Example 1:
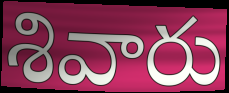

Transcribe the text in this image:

శివారు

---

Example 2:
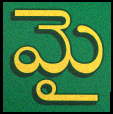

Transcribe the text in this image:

మై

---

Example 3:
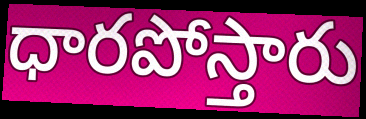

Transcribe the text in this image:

ధారపోస్తారు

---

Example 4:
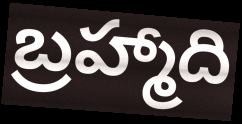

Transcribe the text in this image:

బ్రహ్మాది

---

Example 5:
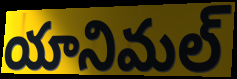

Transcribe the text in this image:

యానిమల్